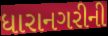
ધારાનગરીની